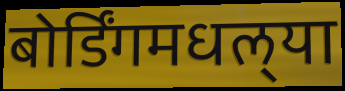
बोर्डिंगमधल्या